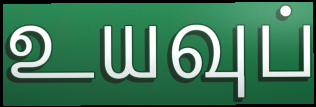
உயவுப்